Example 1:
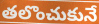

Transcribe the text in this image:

తలొంచుకునే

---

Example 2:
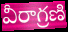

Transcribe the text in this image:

వీరాగ్రణి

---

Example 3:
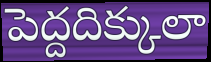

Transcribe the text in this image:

పెద్దదిక్కులా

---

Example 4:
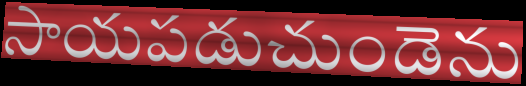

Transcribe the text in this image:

సాయపడుచుండెను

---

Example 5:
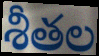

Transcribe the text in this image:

శీతల